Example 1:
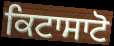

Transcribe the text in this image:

ਕਿਟਾਸਾਟੋ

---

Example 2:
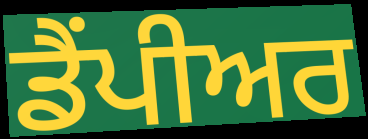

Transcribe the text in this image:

ਡੈਂਪੀਅਰ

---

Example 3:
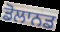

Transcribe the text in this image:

ਡੋਲਾਨਡ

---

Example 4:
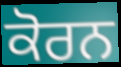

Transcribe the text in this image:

ਕੋਰਨ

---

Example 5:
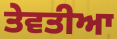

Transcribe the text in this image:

ਤੇਵਤੀਆ